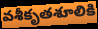
వశీకృతశూలికి